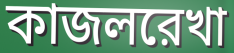
কাজলরেখা